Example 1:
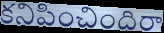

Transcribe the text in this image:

కనిపించిందిరా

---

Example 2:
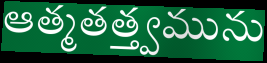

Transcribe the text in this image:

ఆత్మతత్త్వమును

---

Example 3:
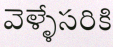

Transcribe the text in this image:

వెళ్ళేసరికి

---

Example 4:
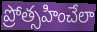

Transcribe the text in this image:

ప్రోత్సహించేలా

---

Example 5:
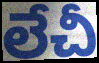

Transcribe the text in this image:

లేచీ